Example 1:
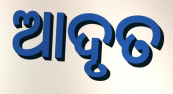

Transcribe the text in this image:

ଆଦୃତ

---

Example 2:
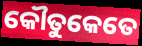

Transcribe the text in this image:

କୌତୁକେତେ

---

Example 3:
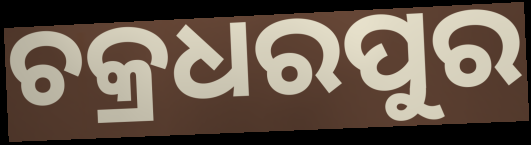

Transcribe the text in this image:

ଚକ୍ରଧରପୁର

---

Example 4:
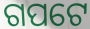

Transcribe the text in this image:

ଗପଟେ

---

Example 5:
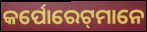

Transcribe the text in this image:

କର୍ପୋରେଟ୍‌ମାନେ